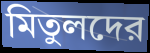
মিতুলদের